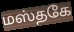
மஸ்தகே